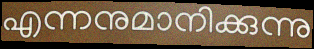
എന്നനുമാനിക്കുന്നു